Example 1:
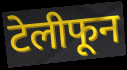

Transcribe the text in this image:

टेलीफून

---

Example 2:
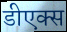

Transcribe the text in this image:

डीएक्स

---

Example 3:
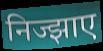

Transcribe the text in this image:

निज्झाए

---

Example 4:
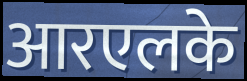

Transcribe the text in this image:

आरएलके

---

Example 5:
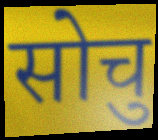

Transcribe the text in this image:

सोचु